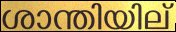
ശാന്തിയില്